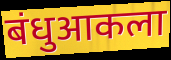
बंधुआकला